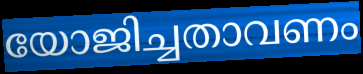
യോജിച്ചതാവണം